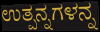
ಉತ್ಪನ್ನಗಳನ್ನ